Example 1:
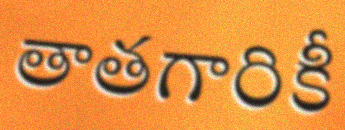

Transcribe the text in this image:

తాతగారికీ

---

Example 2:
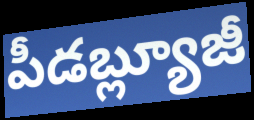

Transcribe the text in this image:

పీడబ్ల్యూజీ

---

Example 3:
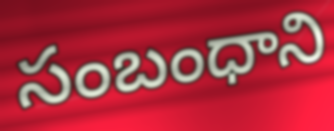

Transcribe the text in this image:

సంబంధాని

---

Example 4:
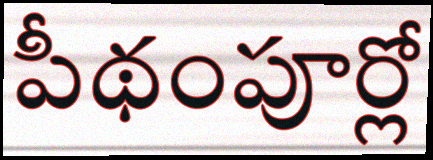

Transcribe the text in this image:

పీథంపూర్లో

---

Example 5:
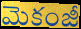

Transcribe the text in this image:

మెకంజీ